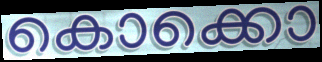
കൊക്കൊ